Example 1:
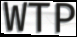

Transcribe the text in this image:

WTP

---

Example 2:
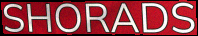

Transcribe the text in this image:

SHORADS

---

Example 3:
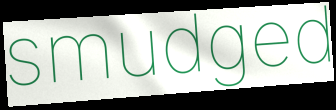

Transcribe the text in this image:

smudged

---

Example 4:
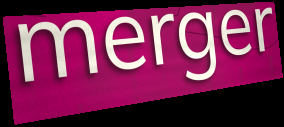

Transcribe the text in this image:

merger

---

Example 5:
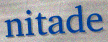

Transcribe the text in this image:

nitade